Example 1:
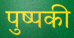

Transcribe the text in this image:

पुष्पकी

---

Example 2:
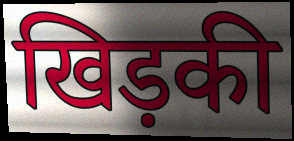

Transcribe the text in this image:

खिड़की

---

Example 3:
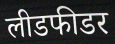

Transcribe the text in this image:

लीडफीडर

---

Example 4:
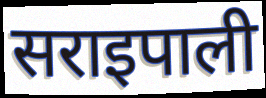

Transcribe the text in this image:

सराइपाली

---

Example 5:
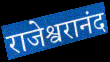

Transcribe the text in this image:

राजेश्वरानंद